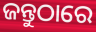
ଜନ୍ତୁଠାରେ